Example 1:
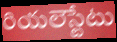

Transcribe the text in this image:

రియలెస్టేటు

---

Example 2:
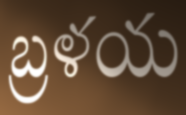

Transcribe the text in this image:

బ్రళయ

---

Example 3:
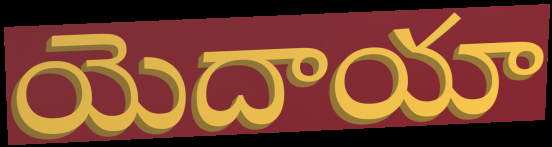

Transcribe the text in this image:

యెదాయా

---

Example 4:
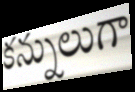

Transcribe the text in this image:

కన్నులుగా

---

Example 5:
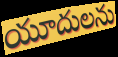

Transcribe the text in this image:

యూదులను